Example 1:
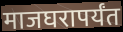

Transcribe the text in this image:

माजघरापर्यंत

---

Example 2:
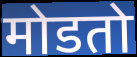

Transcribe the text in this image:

मोडतो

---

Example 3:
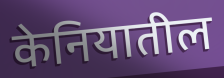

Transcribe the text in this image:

केनियातील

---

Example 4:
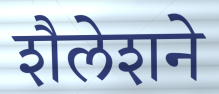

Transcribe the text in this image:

शैलेशने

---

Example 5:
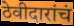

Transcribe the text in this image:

ठेवीदारांचं